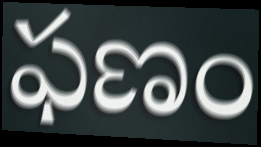
ఫణం